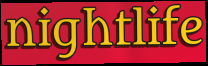
nightlife